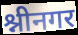
श्नीनगर